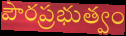
పౌరప్రభుత్వం